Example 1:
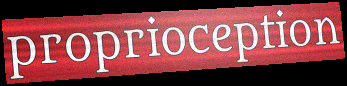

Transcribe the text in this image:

proprioception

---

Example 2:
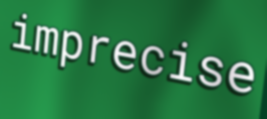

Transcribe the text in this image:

imprecise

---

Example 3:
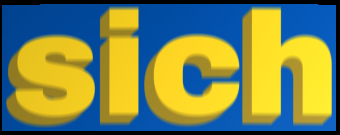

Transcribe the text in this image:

sich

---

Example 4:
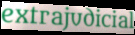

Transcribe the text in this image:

extrajudicial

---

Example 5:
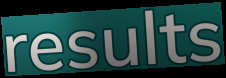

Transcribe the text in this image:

results